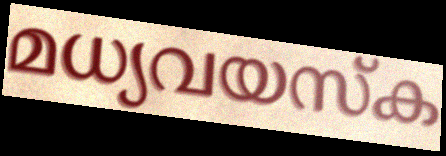
മധ്യവയസ്ക